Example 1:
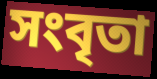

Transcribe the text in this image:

সংবৃতা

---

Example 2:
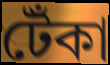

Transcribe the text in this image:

টেঁকা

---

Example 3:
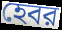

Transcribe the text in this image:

হেবর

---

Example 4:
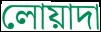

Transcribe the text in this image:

লোয়াদা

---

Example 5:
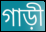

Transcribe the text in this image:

গাড়ী